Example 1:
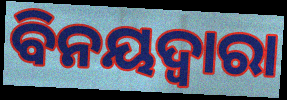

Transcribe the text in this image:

ବିନୟଦ୍ୱାରା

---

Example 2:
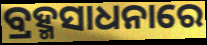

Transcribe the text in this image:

ବ୍ରହ୍ମସାଧନାରେ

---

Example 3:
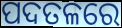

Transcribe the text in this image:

ପଦତଳରେ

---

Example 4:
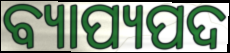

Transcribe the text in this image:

ବ୍ୟାପ୍ୟପଦ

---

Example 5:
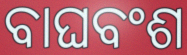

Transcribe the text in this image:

ବାଘବଂଶ